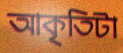
আকৃতিটা